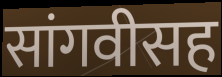
सांगवीसह